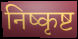
निष्कृष्ट